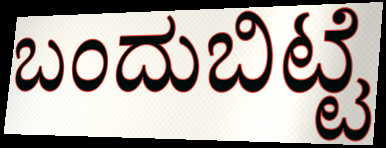
ಬಂದುಬಿಟ್ಟೆ